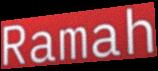
Ramah